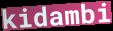
kidambi